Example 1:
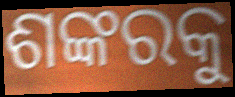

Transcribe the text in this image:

ଶଙ୍କରକୁ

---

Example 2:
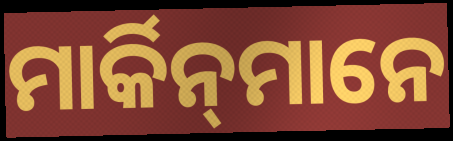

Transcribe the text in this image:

ମାର୍କିନ୍‌ମାନେ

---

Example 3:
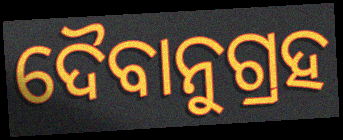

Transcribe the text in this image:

ଦୈବାନୁଗ୍ରହ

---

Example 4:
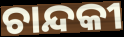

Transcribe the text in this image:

ଚାନ୍ଦକୀ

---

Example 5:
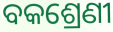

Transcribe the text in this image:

ବକଶ୍ରେଣୀ